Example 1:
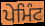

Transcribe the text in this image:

ਪੇਮਿੰਟ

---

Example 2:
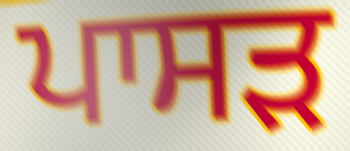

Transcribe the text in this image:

ਪਾਸੜ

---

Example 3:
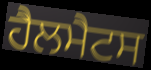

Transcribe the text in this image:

ਹੈਲਮੈਟਸ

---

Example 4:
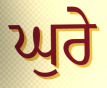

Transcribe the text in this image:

ਘੁਰੇ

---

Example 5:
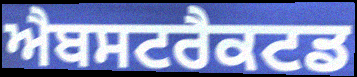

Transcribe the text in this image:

ਐਬਸਟਰੈਕਟਡ